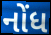
નોંધ